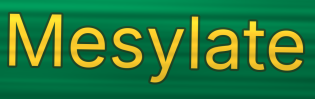
Mesylate